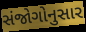
સંજોગોનુસાર